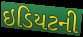
ઇડિયટની